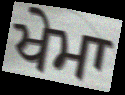
ਖੇਮਾ